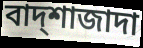
বাদ্শাজাদা